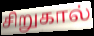
சிறுகால்